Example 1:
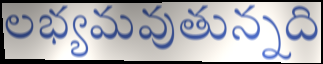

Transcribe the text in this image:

లభ్యమవుతున్నది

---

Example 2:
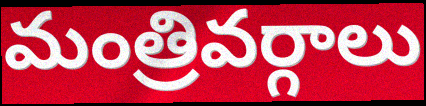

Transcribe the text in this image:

మంత్రివర్గాలు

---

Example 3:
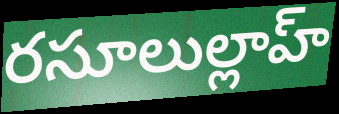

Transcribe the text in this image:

రసూలుల్లాహ్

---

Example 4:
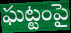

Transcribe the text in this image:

ఘట్టంపై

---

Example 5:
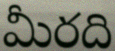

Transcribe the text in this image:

మీరది